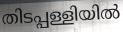
തിടപ്പള്ളിയിൽ